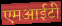
एमआईटी